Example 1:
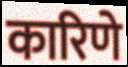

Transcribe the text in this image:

कारिणे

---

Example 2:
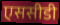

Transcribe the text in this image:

एससीडी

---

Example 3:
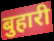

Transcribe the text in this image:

बुहारी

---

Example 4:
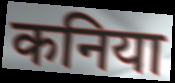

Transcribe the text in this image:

कनिया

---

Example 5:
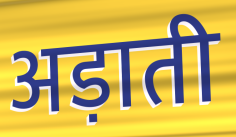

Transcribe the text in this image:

अड़ाती